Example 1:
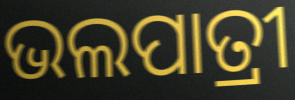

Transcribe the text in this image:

ଭଲପାତ୍ରୀ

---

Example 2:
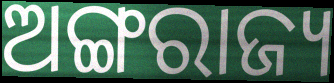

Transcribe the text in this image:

ଅଙ୍ଗରାଜ୍ୟ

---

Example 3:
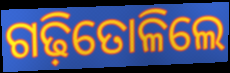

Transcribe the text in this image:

ଗଢ଼ିତୋଳିଲେ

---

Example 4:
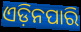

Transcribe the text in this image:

ଏଡ଼ିନପାରି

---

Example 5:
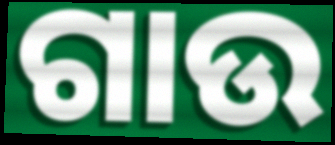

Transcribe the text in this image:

ଗାଉ